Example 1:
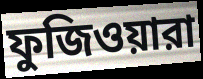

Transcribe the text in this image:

ফুজিওয়ারা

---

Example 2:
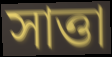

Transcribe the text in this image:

সাত্তা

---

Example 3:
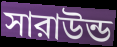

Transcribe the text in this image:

সারাউন্ড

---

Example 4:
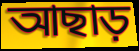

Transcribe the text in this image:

আছাড়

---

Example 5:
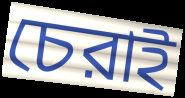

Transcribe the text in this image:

চেরাই